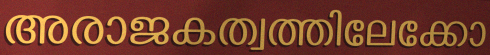
അരാജകത്വത്തിലേക്കോ